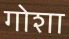
गोशा